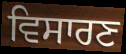
ਵਿਸਾਰਣ